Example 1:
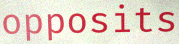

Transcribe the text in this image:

opposits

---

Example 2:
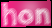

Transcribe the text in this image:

hon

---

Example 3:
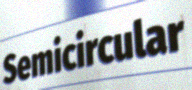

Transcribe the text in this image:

Semicircular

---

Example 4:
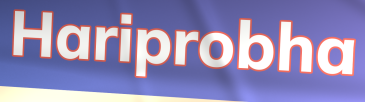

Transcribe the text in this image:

Hariprobha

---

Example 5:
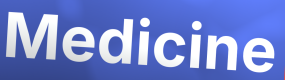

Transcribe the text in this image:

Medicine